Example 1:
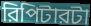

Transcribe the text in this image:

রিপিটারটা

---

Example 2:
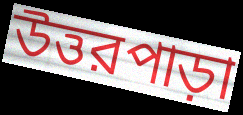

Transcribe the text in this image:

উত্তরপাড়া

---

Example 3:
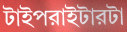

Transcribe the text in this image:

টাইপরাইটারটা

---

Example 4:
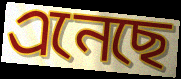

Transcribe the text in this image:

এনেছে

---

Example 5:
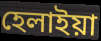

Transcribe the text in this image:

হেলাইয়া